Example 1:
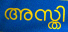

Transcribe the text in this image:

അസ്തി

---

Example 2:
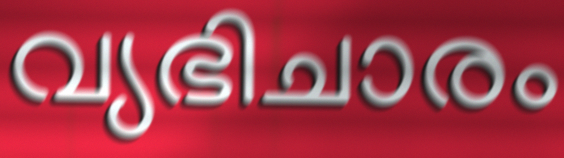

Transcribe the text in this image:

വ്യഭിചാരം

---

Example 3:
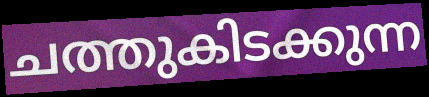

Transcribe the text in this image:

ചത്തുകിടക്കുന്ന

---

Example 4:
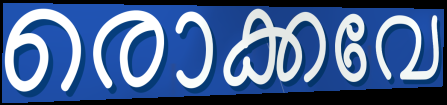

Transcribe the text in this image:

രൊക്കവേ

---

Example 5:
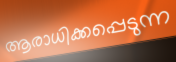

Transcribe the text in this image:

ആരാധിക്കപ്പെടുന്ന